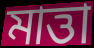
মাত্তা